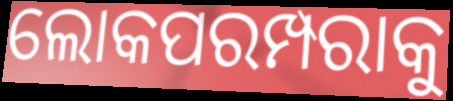
ଲୋକପରମ୍ପରାକୁ